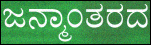
ಜನ್ಮಾಂತರದ